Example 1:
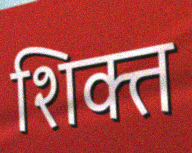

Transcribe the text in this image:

शिक्त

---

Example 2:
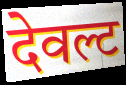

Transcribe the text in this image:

देवल्ट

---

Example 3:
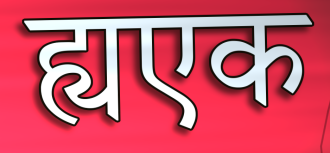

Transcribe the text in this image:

ह्यएक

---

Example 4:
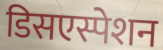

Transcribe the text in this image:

डिसएस्पेशन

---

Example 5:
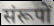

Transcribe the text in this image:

संरूपों